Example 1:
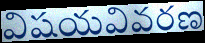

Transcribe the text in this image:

విషయవివరణ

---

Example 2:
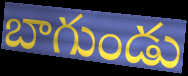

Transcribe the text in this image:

బాగుండు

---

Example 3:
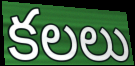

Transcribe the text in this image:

కలలు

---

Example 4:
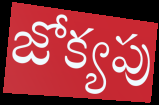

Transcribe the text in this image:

జోక్యపు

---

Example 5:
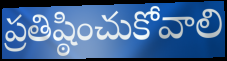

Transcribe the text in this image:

ప్రతిష్ఠించుకోవాలి